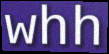
whh